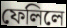
ফেলিলে